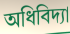
অধিবিদ্যা